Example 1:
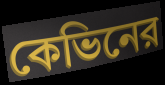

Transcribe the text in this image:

কেভিনের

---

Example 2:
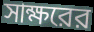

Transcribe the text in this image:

সাক্ষরের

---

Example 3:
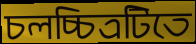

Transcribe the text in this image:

চলচ্চিত্রটিতে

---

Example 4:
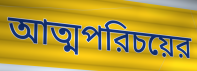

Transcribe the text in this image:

আত্মপরিচয়ের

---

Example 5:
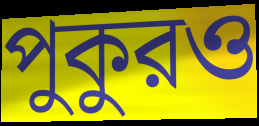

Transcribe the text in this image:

পুকুরও